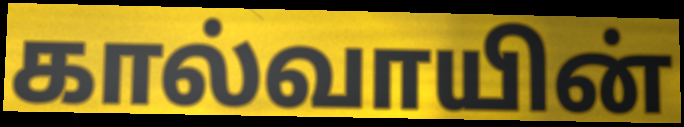
கால்வாயின்